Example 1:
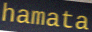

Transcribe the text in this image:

hamata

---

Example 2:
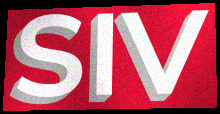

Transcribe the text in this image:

SIV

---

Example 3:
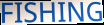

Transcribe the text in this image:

FISHING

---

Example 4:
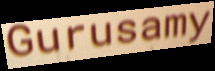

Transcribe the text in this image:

Gurusamy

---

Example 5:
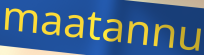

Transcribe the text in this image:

maatannu